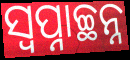
ସ୍ଵପ୍ନାଚ୍ଛନ୍ନ